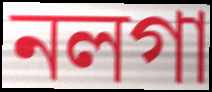
নলগা